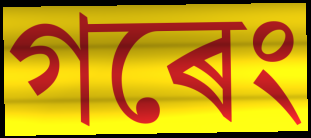
গৰেং